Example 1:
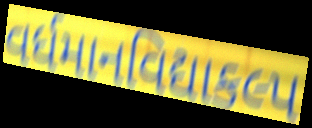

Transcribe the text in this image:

વર્ધમાનવિદ્યાકલ્પ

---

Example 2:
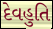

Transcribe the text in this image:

દેવહુતિ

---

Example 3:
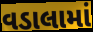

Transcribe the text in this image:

વડાલામાં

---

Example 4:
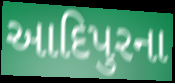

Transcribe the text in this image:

આદિપુરના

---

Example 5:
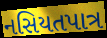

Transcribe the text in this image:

નસિયતપાત્ર